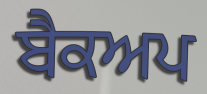
ਬੈਕਅਪ